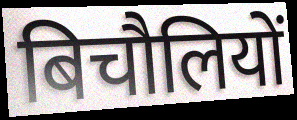
बिचौलियों